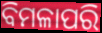
ବିମଳାପରି